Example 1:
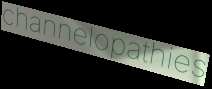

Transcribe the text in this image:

channelopathies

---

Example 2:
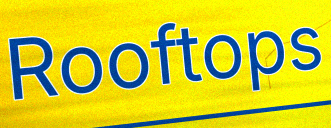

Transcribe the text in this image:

Rooftops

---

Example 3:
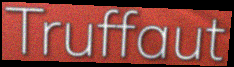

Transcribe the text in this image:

Truffaut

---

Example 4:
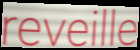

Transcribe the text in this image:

reveille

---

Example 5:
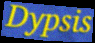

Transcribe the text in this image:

Dypsis